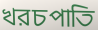
খরচপাতি